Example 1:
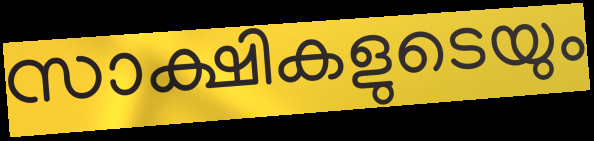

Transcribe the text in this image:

സാക്ഷികളുടെയും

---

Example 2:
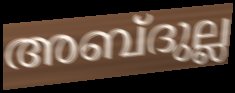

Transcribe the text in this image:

അബ്ദുല്ല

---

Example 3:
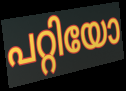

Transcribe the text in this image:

പറ്റിയോ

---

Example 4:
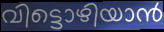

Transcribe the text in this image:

വിട്ടൊഴിയാൻ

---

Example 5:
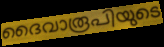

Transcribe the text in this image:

ദൈവാരൂപിയുടെ